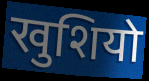
खुशियो